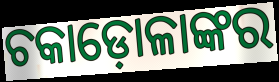
ଚକାଡ଼ୋଳାଙ୍କର